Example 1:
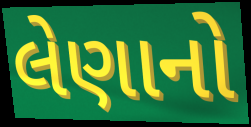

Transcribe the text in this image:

લેણાનો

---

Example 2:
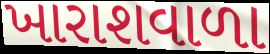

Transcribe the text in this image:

ખારાશવાળા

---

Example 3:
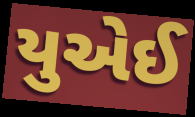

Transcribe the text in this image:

યુએઈ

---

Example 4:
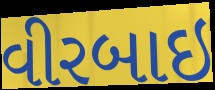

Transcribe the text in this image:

વીરબાઇ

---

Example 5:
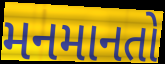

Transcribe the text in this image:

મનમાનતો